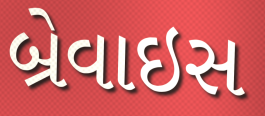
બ્રેવાઇસ